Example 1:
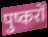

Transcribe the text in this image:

पुष्करों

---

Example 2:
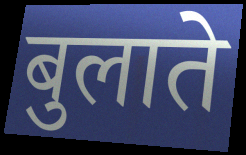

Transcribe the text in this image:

बुलाते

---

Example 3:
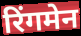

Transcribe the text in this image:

रिंगमेन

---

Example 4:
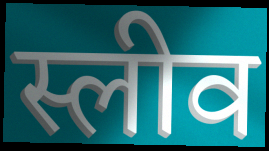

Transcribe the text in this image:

स्लीव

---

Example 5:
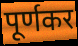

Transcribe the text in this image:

पूर्णकर